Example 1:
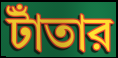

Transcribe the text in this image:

টাঁতার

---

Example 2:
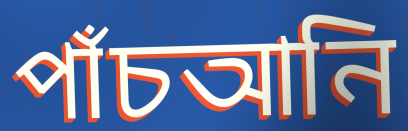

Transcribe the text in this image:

পাঁচআনি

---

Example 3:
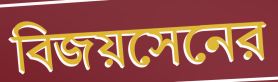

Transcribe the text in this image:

বিজয়সেনের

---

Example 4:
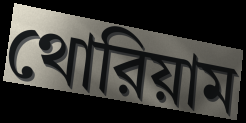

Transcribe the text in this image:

থোরিয়াম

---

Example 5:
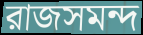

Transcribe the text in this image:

রাজসমন্দ